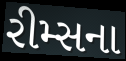
રીમ્સના